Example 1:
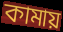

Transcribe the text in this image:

কামায়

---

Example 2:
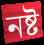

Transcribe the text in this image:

নষ্ট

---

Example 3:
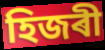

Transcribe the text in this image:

হিজৰী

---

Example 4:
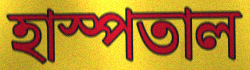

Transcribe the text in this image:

হাস্পতাল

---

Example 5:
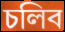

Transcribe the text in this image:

চলিব